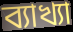
ব্যাখ্যা